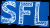
SFL